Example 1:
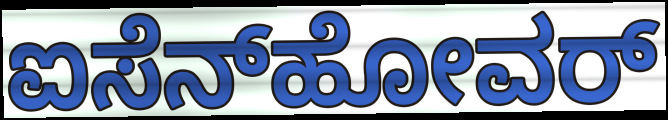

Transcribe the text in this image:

ಐಸೆನ್‍ಹೋವರ್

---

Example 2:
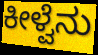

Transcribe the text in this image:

ಕೀಳ್ವೆನು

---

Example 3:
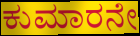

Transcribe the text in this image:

ಕುಮಾರನೇ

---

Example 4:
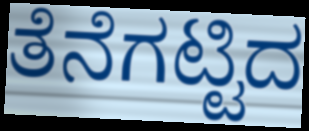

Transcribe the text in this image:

ತೆನೆಗಟ್ಟಿದ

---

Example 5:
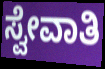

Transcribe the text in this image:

ಸ್ವೇವಾತಿ